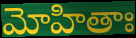
మోహితాః